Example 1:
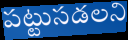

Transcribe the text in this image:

పట్టుసడలని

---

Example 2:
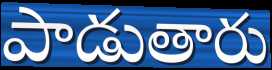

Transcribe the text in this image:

పాడుతారు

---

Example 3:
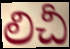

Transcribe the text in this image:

లిచీ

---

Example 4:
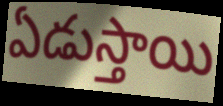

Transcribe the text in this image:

ఏడుస్తాయి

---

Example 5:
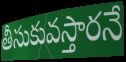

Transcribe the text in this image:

తీసుకువస్తారనే